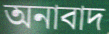
অনাবাদ